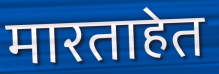
मारताहेत